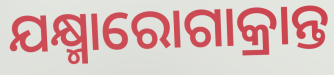
ଯକ୍ଷ୍ମାରୋଗାକ୍ରାନ୍ତ